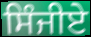
ਸਿੰਜੀਏ